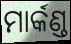
ମାର୍କଣ୍ଡ